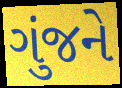
ગુંજને